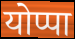
योप्पा